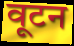
वूटन